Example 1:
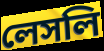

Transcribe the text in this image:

লেসলি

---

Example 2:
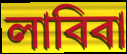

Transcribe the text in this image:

লাবিবা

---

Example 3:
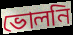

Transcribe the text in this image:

ভোলনি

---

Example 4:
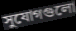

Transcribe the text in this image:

সুযোগগুলো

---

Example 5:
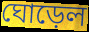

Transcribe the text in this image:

ঘোড়েল